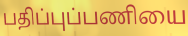
பதிப்புப்பணியை